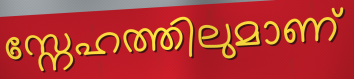
സ്നേഹത്തിലുമാണ്